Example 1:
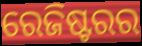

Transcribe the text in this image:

ରେଜିଷ୍ଟରର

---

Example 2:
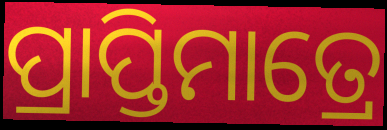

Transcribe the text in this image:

ପ୍ରାପ୍ତିମାତ୍ରେ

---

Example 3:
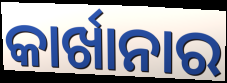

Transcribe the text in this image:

କାର୍ଖାନାର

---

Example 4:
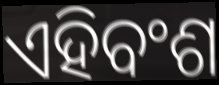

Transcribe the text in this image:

ଏହିବଂଶ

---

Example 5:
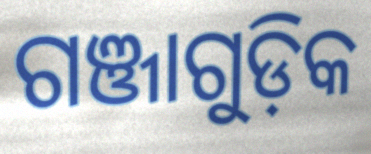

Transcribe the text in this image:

ଗଞ୍ଜାଗୁଡ଼ିକ